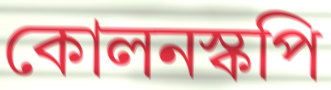
কোলনস্কপি